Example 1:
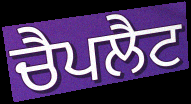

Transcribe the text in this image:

ਚੈਪਲੈਟ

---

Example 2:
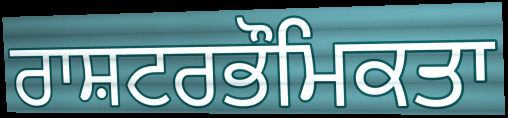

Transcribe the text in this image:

ਰਾਸ਼ਟਰਭੌਮਿਕਤਾ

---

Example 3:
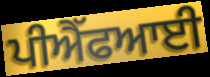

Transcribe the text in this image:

ਪੀਐੱਫਆਈ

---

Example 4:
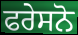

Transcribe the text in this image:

ਫਰੇਸਨੋ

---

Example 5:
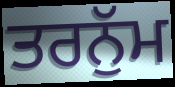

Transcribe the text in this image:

ਤਰਨੁੱਮ